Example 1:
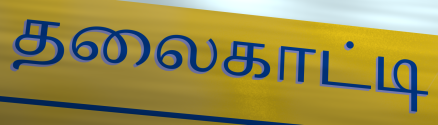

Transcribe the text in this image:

தலைகாட்டி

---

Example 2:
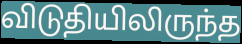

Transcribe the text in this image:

விடுதியிலிருந்த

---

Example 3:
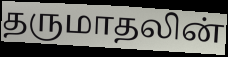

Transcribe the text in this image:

தருமாதலின்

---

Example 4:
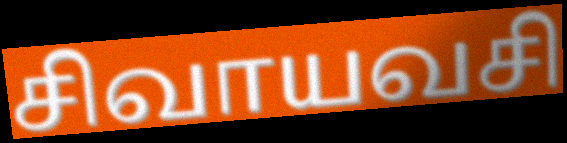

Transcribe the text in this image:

சிவாயவசி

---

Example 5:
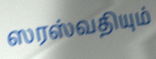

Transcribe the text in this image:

ஸரஸ்வதியும்